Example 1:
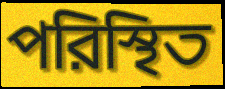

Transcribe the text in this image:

পরিস্থিত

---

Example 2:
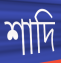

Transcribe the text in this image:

শাদি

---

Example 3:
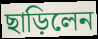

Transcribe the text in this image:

ছাড়িলেন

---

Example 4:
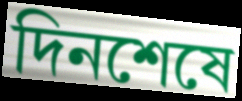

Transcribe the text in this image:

দিনশেষে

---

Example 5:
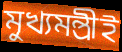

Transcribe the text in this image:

মুখ্যমন্ত্রীই